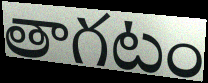
తాగటం